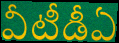
వీటీడీఏ